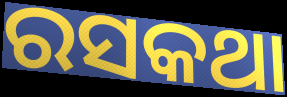
ରସକଥା